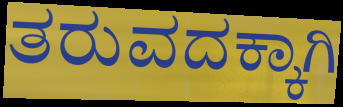
ತರುವದಕ್ಕಾಗಿ